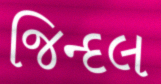
જિન્દલ